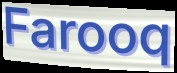
Farooq